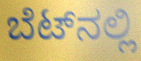
ಬೆಟ್‌ನಲ್ಲಿ